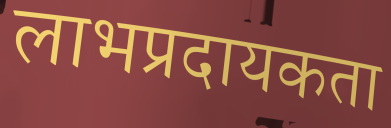
लाभप्रदायकता